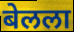
बेलला